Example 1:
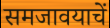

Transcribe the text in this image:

समजावयाचें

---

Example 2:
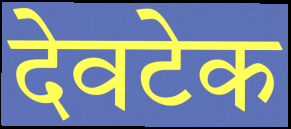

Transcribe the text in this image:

देवटेक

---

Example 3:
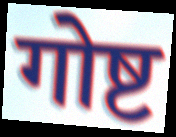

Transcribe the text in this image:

गोष्ट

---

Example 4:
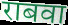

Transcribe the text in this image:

राबवा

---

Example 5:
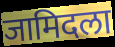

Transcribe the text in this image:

जामिदला